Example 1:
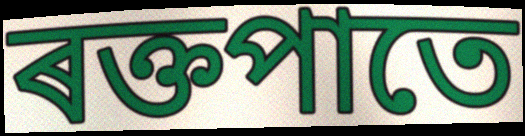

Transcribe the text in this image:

ৰক্তপাতে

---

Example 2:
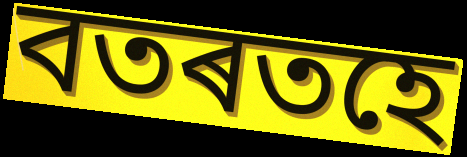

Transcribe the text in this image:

বতৰতহে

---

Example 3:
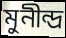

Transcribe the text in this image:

মুনীন্দ্ৰ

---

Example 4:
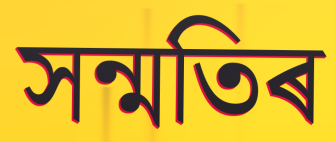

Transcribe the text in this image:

সন্মতিৰ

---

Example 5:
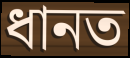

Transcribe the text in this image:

ধানত